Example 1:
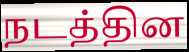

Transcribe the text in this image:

நடத்தின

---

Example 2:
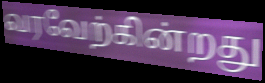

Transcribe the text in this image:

வரவேற்கின்றது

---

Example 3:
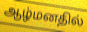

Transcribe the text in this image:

ஆழ்மனதில்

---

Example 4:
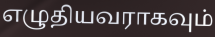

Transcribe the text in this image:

எழுதியவராகவும்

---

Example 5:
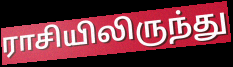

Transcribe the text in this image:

ராசியிலிருந்து